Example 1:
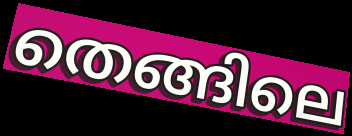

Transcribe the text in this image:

തെങ്ങിലെ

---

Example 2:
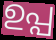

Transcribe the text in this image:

ഉപ്പ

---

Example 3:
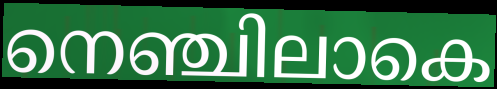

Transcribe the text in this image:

നെഞ്ചിലാകെ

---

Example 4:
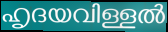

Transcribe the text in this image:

ഹൃദയവിള്ളൽ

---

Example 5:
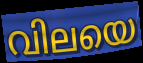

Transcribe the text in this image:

വിലയെ